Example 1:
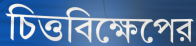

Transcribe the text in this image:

চিত্তবিক্ষেপের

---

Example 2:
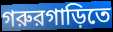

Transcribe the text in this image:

গরুরগাড়িতে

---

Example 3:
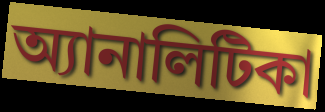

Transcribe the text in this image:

অ্যানালিটিকা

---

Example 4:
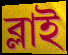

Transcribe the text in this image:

ব্লাই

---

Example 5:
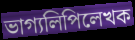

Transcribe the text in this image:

ভাগ্যলিপিলেখক